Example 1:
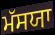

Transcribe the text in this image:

ਮੱਸਯਾ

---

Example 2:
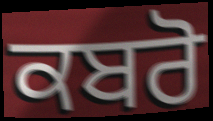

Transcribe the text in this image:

ਕਬਰੋ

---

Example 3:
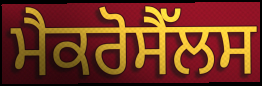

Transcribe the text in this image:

ਮੈਕਰੋਸੈੱਲਸ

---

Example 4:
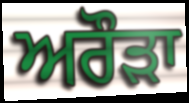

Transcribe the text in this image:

ਅਰੌੜਾ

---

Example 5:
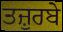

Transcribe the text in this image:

ਤਜ਼ੁਰਬੇ